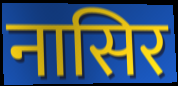
नासिर